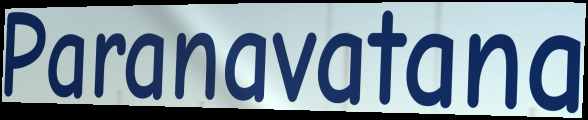
Paranavatana